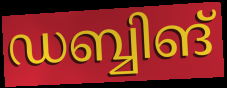
ഡബ്ബിങ്